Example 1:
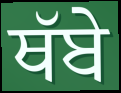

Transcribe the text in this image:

ਥੱਬੇ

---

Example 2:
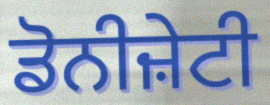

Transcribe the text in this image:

ਡੋਨੀਜ਼ੇਟੀ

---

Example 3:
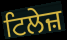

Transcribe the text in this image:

ਟਿਲੇਜ਼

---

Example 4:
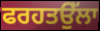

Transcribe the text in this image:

ਫਰਹਤਉੱਲਾ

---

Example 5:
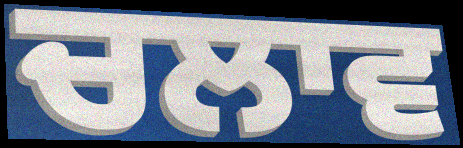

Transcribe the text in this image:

ਚਲਾਵ